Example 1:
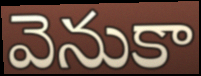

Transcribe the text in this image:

వెనుకా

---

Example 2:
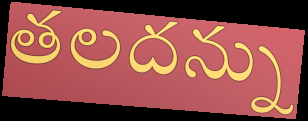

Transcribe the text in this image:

తలదన్ను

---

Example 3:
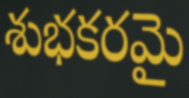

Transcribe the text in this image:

శుభకరమై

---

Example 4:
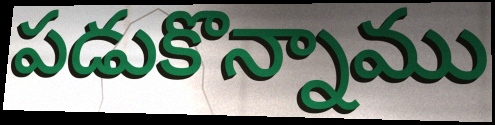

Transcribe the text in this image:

పడుకొన్నాము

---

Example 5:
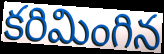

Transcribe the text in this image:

కరిమింగిన